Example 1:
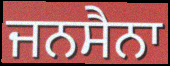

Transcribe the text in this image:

ਜਨਸੈਨਾ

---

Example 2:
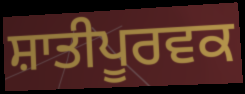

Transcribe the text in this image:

ਸ਼ਾਤੀਪੂਰਵਕ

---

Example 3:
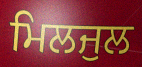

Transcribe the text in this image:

ਮਿਲਜੁਲ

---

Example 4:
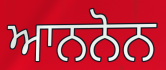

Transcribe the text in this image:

ਆਨਨੋਨ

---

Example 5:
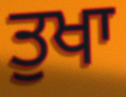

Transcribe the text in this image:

ਤੁਖਾ